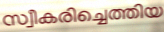
സ്വീകരിച്ചെത്തിയ